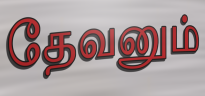
தேவனும்